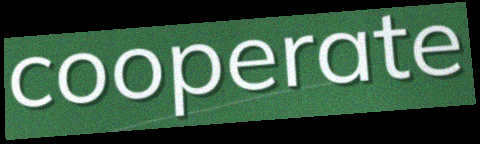
cooperate